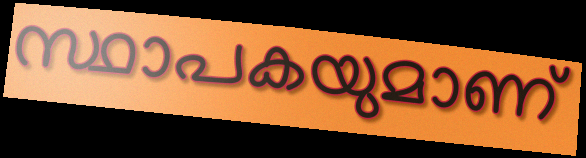
സ്ഥാപകയുമാണ്